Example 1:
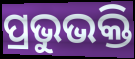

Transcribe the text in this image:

ପ୍ରଭୁଭକ୍ତି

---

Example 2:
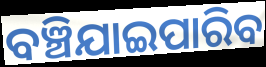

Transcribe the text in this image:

ବଞ୍ଚିଯାଇପାରିବ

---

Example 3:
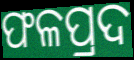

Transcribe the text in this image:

ଫଳପ୍ରଦ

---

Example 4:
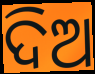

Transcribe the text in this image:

ଦିଅ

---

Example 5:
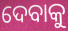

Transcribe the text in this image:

ଦେବାକୁ